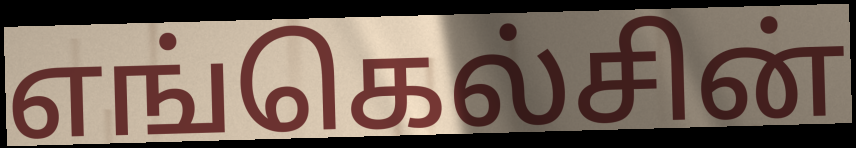
எங்கெல்சின்